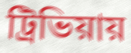
ট্রিভিয়ায়